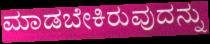
ಮಾಡಬೇಕಿರುವುದನ್ನು